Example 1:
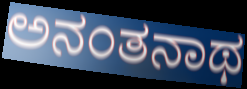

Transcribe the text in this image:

ಅನಂತನಾಥ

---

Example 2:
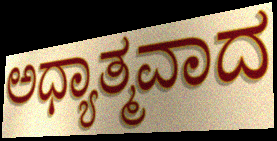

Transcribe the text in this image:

ಅಧ್ಯಾತ್ಮವಾದ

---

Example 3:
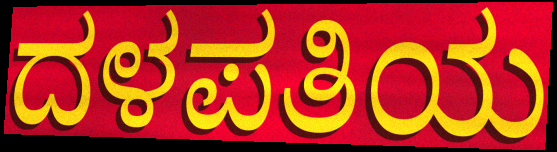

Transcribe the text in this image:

ದಳಪತಿಯ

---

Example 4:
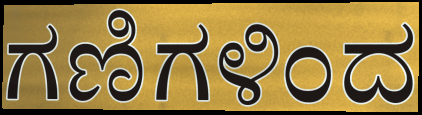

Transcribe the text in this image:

ಗಣಿಗಳಿಂದ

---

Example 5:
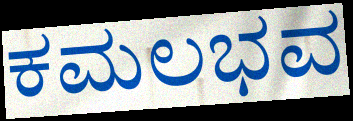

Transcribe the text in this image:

ಕಮಲಭವ